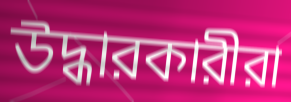
উদ্ধারকারীরা